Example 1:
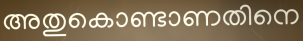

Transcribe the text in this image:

അതുകൊണ്ടാണതിനെ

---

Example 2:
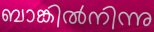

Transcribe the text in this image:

ബാങ്കിൽനിന്നു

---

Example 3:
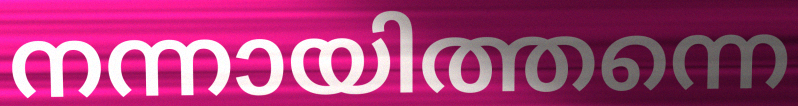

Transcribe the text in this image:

നന്നായിത്തന്നെ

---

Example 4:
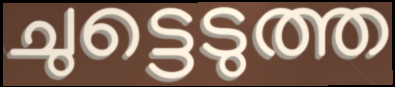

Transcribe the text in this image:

ചുട്ടെടുത്ത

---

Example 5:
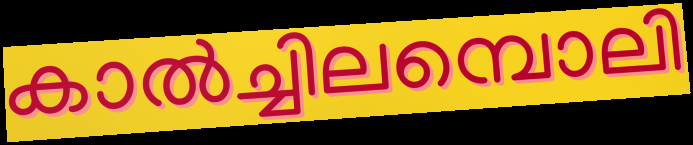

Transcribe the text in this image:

കാൽച്ചിലമ്പൊലി